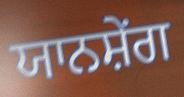
ਯਾਨਸ਼ੇਂਗ